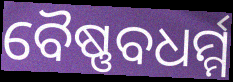
ବୈଷ୍ଣବଧର୍ମ୍ମ